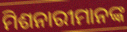
ମିଶନାରୀମାନଙ୍କ